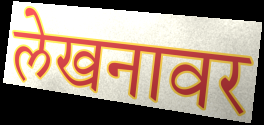
लेखनावर